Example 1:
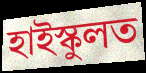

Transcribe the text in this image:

হাইস্কুলত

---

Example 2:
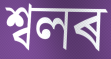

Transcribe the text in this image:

শ্বলৰ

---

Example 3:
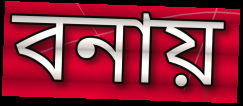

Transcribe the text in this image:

বনায়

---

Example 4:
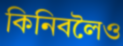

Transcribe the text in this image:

কিনিবলৈও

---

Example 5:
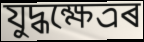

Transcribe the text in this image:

যুদ্ধক্ষেত্ৰৰ